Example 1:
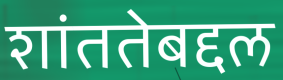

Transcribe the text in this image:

शांततेबद्दल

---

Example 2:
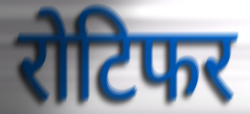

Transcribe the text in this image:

रोटिफर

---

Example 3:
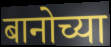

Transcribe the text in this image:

बानोच्या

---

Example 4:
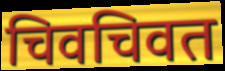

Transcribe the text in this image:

चिवचिवत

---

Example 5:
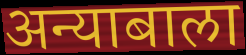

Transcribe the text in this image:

अन्याबाला